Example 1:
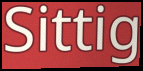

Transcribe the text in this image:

Sittig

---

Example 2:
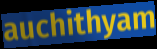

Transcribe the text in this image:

auchithyam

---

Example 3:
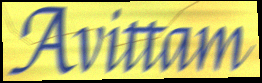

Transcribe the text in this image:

Avittam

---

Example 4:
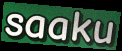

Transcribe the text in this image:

saaku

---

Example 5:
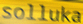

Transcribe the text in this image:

solluka